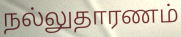
நல்லுதாரணம்